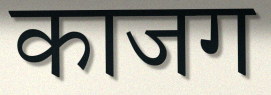
काजग